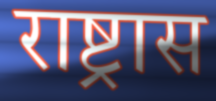
राष्ट्रास